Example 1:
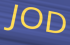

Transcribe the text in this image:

JOD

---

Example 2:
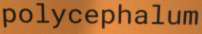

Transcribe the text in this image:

polycephalum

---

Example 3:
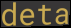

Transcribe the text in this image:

deta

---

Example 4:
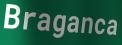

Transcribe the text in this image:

Braganca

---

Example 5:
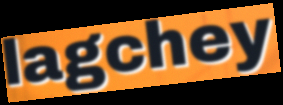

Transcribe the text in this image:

lagchey